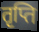
तृप्ति